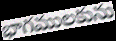
భాగములకును